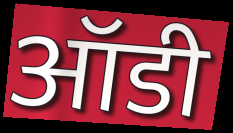
ऑडी